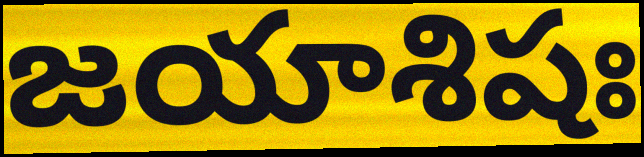
జయాశిషః